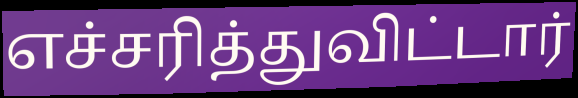
எச்சரித்துவிட்டார்